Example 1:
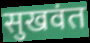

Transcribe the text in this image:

सुखवंत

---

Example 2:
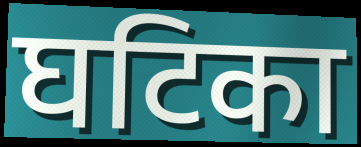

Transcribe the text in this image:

घटिका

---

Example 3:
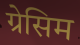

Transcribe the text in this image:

ग्रेसिम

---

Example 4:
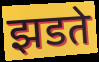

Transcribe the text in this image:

झडते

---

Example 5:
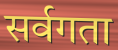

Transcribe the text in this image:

सर्वगता